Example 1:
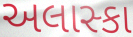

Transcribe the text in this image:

અલાસ્કા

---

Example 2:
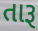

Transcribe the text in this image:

તારૂ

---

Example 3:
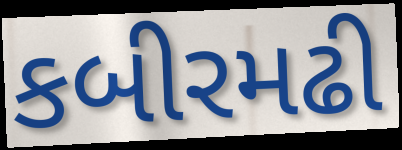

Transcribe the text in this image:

કબીરમઢી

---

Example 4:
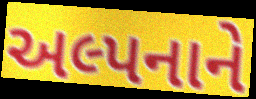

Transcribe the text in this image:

અલ્પનાને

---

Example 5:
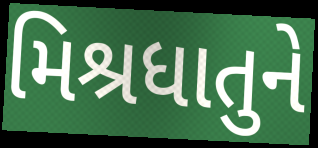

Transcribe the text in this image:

મિશ્રધાતુને